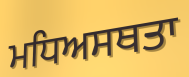
ਮਧਿਅਸਥਤਾ